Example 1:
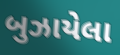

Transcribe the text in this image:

બુઝાયેલા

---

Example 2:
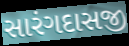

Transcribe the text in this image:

સારંગદાસજી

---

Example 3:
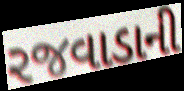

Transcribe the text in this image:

રજવાડાની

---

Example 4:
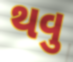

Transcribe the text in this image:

થવુ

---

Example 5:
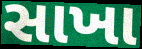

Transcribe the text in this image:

સાખા